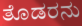
ತೊಡರನು